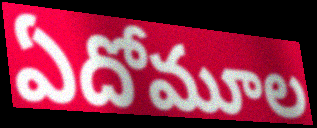
ఏదోమూల